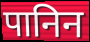
पानिन